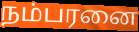
நம்பரனை